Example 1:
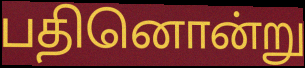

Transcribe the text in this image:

பதினொன்று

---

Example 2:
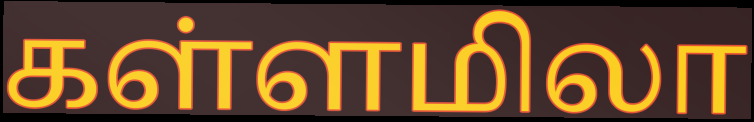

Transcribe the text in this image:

கள்ளமிலா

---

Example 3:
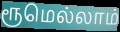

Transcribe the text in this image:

ரூமெல்லாம்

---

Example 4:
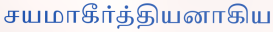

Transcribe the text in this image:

சயமாகீர்த்தியனாகிய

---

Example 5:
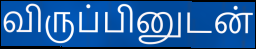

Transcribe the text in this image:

விருப்பினுடன்